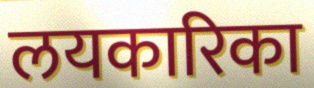
लयकारिका